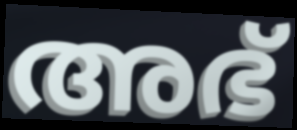
അഭ്